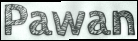
Pawan